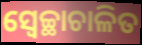
ସ୍ୱେଚ୍ଛାଚାଳିତ